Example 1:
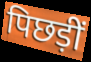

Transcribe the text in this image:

पिछड़ीं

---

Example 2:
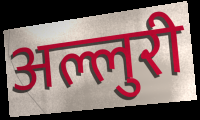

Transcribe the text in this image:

अल्लुरी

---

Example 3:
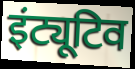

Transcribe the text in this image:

इंट्यूटिव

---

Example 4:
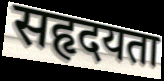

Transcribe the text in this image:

सहृदयता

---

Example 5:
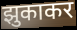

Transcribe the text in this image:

झुकाकर